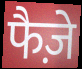
फैज़े